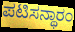
ಪಟಿಸನ್ಥಾರಂ